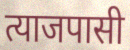
त्याजपासी